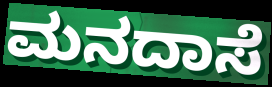
ಮನದಾಸೆ